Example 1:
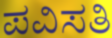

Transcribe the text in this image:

ಪವಿಸತಿ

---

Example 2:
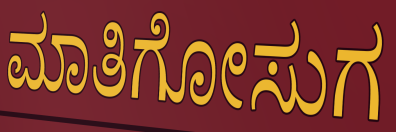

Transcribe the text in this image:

ಮಾತಿಗೋಸುಗ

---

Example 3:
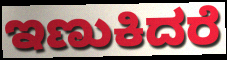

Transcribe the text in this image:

ಇಣುಕಿದರೆ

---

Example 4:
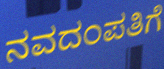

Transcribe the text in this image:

ನವದಂಪತಿಗೆ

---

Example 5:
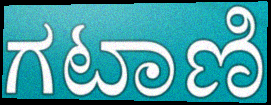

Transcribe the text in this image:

ಗಟಾಣಿ